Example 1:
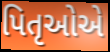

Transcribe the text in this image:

પિતૃઓએ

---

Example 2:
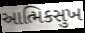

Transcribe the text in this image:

આત્મિકસુખ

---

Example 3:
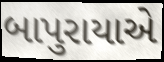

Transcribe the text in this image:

બાપુરાયાએ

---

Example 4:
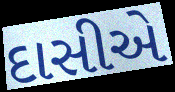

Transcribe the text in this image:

દાસીએ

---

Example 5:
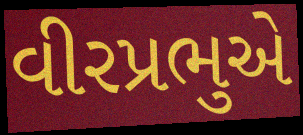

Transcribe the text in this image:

વીરપ્રભુએ